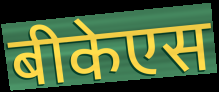
बीकेएस